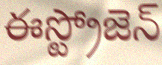
ఈస్ట్రోజెన్